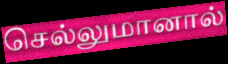
செல்லுமானால்